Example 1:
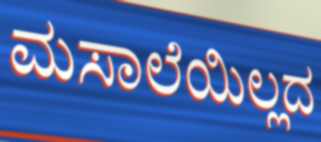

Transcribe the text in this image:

ಮಸಾಲೆಯಿಲ್ಲದ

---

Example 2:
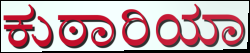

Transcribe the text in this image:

ಕುಠಾರಿಯಾ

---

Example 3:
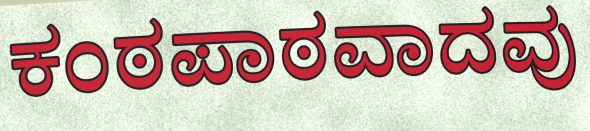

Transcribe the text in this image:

ಕಂಠಪಾಠವಾದವು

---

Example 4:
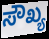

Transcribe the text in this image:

ಸೌಖ್ಯ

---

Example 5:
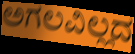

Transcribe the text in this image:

ಅಗಲವಿಲ್ಲದ